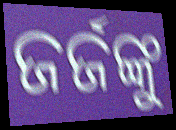
ଜର୍ଜଙ୍କୁ